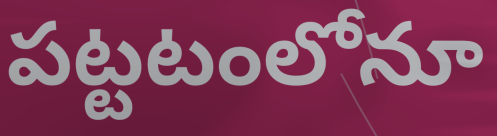
పట్టటంలోనూ